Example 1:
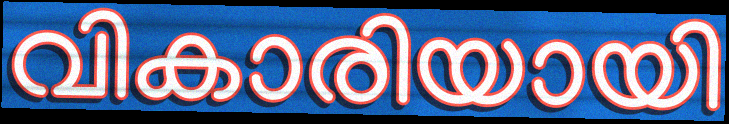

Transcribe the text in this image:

വികാരിയായി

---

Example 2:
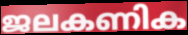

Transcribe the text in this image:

ജലകണിക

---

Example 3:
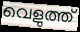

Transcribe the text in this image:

വെളുത്ത്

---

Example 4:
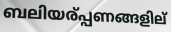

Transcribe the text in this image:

ബലിയര്പ്പണങ്ങളില്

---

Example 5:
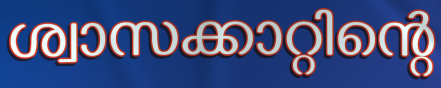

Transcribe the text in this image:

ശ്വാസക്കാറ്റിന്റെ